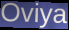
Oviya